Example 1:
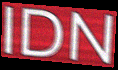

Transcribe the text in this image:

IDN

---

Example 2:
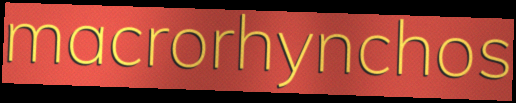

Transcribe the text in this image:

macrorhynchos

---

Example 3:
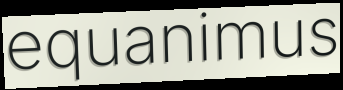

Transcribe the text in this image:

equanimus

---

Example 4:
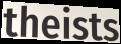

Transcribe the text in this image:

theists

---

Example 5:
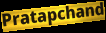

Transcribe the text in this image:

Pratapchand